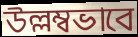
উল্লম্বভাবে